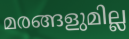
മരങ്ങളുമില്ല